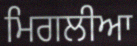
ਮਿਗਲੀਆ